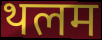
थलम